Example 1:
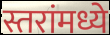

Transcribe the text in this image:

स्तरांमध्ये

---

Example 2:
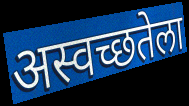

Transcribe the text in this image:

अस्वच्छतेला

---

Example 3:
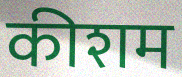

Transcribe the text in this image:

कीशम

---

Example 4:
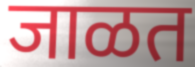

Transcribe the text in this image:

जाळत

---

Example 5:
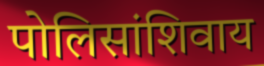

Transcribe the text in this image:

पोलिसांशिवाय